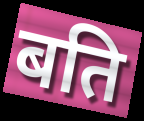
बति